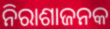
ନିରାଶାଜନକ